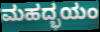
ಮಹದ್ಭಯಂ